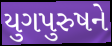
યુગપુરુષને